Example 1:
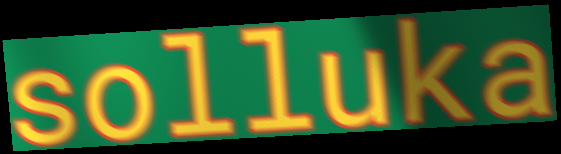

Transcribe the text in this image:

solluka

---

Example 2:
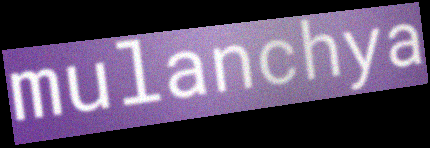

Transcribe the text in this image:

mulanchya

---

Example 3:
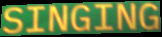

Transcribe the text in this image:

SINGING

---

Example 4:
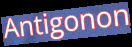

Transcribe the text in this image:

Antigonon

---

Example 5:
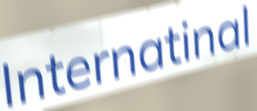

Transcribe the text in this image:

Internatinal